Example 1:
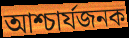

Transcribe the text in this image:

আশ্চার্যজনক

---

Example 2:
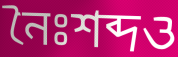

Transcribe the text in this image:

নৈঃশব্দও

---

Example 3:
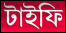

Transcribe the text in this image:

টাইফি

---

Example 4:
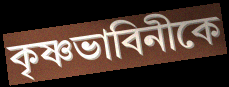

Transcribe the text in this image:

কৃষ্ণভাবিনীকে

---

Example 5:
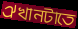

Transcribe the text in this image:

ঐখানটাতে